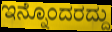
ಇನ್ನೊಂದರದ್ದು